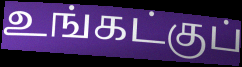
உங்கட்குப்